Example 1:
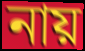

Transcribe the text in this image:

নায়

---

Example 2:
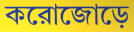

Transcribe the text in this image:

করোজোড়ে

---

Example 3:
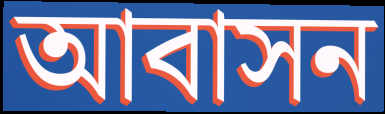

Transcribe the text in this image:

আবাসন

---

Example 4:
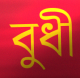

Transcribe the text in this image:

বুধী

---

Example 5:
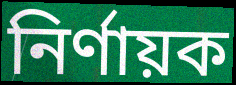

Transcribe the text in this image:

নির্ণায়ক